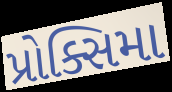
પ્રોક્સિમા